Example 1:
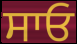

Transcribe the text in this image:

ਸਾਓ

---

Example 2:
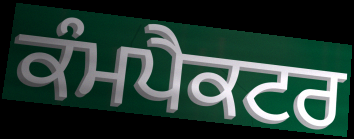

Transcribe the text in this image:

ਕੰਮਪੈਕਟਰ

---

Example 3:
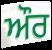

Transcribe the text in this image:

ਔਰ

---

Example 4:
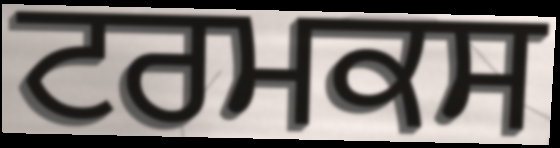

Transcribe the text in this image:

ਟਰਮਕਸ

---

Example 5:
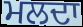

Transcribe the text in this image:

ਮਲਦਾ